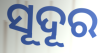
ସୂଦୂର